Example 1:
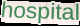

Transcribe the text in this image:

hospital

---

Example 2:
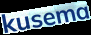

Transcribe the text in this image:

kusema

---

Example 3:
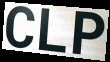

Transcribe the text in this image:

CLP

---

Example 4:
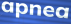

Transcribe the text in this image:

apnea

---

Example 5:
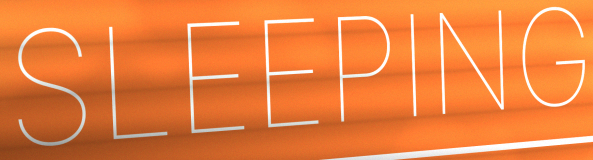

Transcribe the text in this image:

SLEEPING